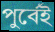
পুর্বেই